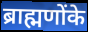
ब्राह्मणोंके